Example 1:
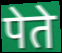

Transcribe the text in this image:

पेते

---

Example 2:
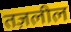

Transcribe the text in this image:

तज़लील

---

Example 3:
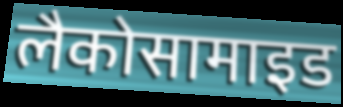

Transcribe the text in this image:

लैकोसामाइड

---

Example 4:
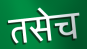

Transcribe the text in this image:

तसेच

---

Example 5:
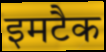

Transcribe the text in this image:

इमटैक